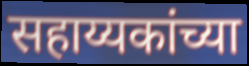
सहाय्यकांच्या